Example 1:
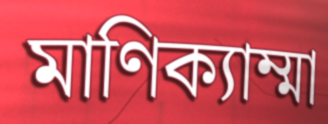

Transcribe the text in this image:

মাণিক্যাম্মা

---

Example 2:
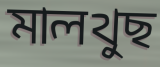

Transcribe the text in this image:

মালথুছ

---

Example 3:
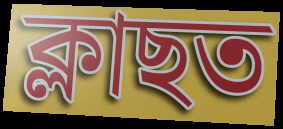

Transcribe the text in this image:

ক্লাছত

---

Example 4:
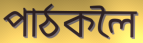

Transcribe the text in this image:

পাঠকলৈ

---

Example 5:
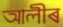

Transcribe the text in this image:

আলীৰ